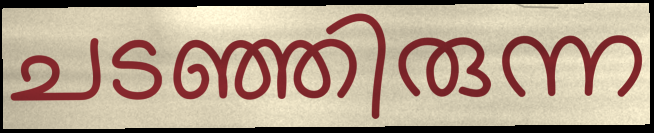
ചടഞ്ഞിരുന്ന